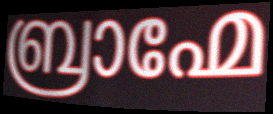
ബ്രാഹ്മേ